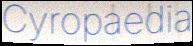
Cyropaedia